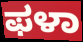
ಫಳಾ